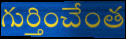
గుర్తించేంత